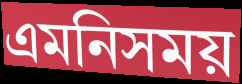
এমনিসময়